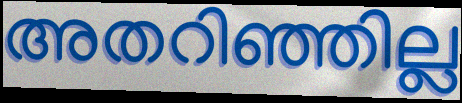
അതറിഞ്ഞില്ല